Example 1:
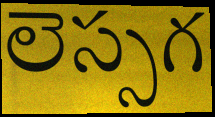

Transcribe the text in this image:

లెస్సగ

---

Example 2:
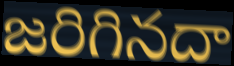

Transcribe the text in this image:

జరిగినదా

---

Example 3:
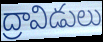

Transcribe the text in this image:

ద్రావిడులు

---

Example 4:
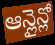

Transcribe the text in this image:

ఆన్లైన్లో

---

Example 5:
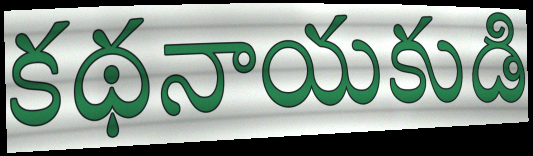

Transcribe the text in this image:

కథనాయకుడి